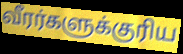
வீரர்களுக்குரிய